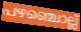
പഴഞ്ചൊല്ല്